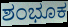
ಶಂಭೂಕ